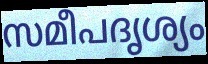
സമീപദൃശ്യം